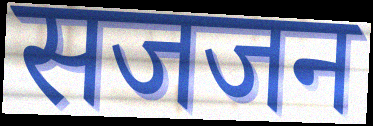
सजजन